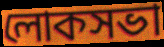
লোকসভা